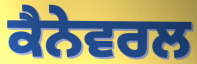
ਕੈਨੇਵਰਲ